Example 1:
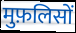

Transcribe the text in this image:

मुफ़लिसों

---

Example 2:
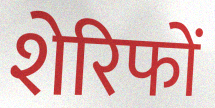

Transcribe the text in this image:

शेरिफों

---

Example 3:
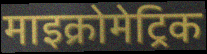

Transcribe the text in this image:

माइक्रोमेट्रिक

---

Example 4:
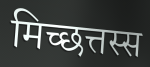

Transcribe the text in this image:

मिच्छत्तस्स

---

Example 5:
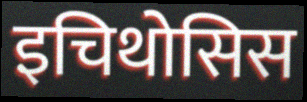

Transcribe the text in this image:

इचिथोसिस